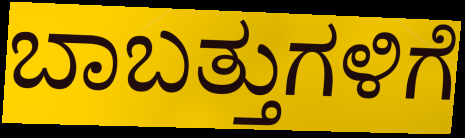
ಬಾಬತ್ತುಗಳಿಗೆ